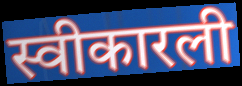
स्वीकारली